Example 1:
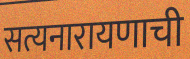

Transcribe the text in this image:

सत्यनारायणाची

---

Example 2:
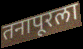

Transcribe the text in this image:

तनापूरला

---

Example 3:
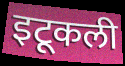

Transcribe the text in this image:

इटूकली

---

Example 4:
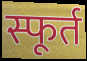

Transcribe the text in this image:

स्फूर्त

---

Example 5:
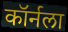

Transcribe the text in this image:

कॉर्नला